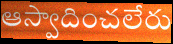
ఆస్వాదించలేరు